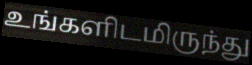
உங்களிடமிருந்து